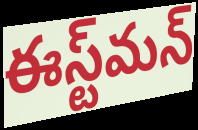
ఈస్ట్‌మన్